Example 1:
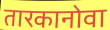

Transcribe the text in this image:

तारकानोवा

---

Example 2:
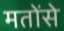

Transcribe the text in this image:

मतोंसे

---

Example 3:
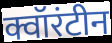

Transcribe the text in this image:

क्वॉरंटीन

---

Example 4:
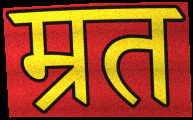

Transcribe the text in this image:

म्रत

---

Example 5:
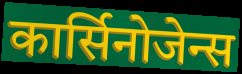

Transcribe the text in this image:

कार्सिनोजेन्स